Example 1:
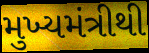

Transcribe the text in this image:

મુખ્યમંત્રીથી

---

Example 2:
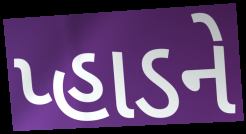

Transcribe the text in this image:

પ્હાડને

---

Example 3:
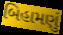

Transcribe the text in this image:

બિહામણું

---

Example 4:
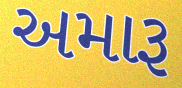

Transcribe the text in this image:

અમારૂ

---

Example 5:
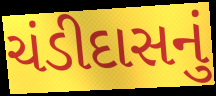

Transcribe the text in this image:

ચંડીદાસનું